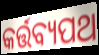
କର୍ତ୍ତବ୍ୟପଥ